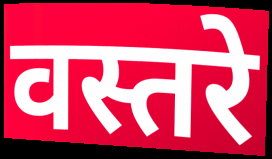
वस्तरे